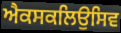
ਐਕਸਕਲਿਉਸਿਵ